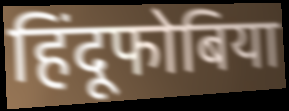
हिंदूफोबिया